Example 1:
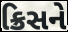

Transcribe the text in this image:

ક્રિસને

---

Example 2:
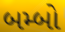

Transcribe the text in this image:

બમ્બો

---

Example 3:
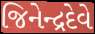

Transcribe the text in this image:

જિનેન્દ્રદેવે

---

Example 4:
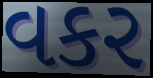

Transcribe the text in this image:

વકર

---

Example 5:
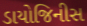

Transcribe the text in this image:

ડાયોજિનીસ